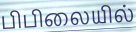
பிபிலையில்